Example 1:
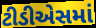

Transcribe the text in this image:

ટીડીએસમાં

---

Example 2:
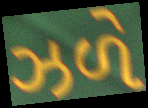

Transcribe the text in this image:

ઝળે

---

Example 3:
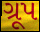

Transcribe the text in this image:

ગ્રૂપ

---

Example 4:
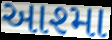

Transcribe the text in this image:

આશ્મા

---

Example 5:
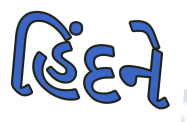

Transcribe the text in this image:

હિંદને